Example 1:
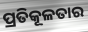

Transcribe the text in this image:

ପ୍ରତିକୂଳତାର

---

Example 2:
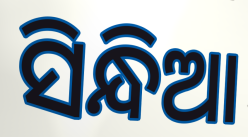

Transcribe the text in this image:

ସିନ୍ଧିଆ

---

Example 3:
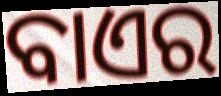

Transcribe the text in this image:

ବାଏର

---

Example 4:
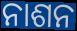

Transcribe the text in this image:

ନାଶନ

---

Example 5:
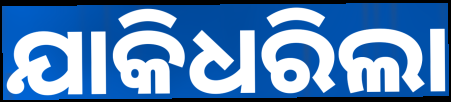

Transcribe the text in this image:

ଯାକିଧରିଲା